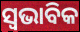
ସ୍ଵଭାବିକ